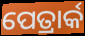
ପେତ୍ରାର୍କ